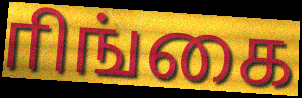
ரிங்கை